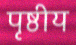
पृष्ठीय